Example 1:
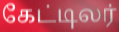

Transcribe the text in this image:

கேட்டிலர்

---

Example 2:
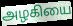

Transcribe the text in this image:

அழகியை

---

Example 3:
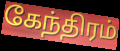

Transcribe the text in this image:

கேந்திரம்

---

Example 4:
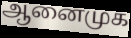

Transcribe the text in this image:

ஆனைமுக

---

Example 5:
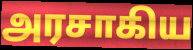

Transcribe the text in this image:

அரசாகிய